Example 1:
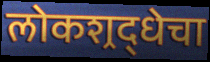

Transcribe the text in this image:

लोकश्रद्धेचा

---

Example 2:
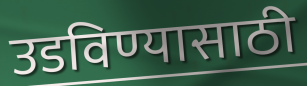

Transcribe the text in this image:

उडविण्यासाठी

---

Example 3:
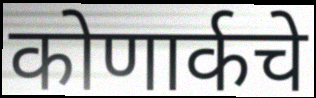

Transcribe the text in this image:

कोणार्कचे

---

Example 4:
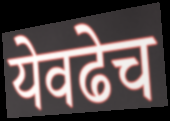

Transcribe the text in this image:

येवढेच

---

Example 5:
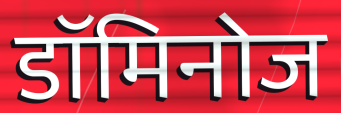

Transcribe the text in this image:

डॉमिनोज